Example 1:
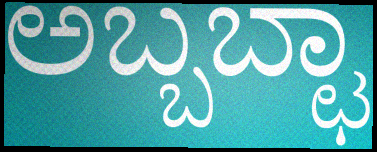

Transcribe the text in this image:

ಅಬ್ಬಬ್ಟಾ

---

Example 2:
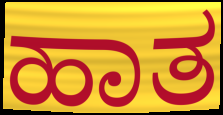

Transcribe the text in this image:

ಹಾತ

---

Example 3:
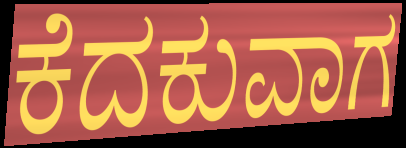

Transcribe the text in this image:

ಕೆದಕುವಾಗ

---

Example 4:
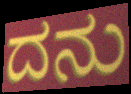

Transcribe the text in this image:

ದನು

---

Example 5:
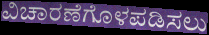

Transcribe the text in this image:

ವಿಚಾರಣೆಗೊಳಪಡಿಸಲು